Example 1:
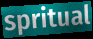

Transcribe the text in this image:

spritual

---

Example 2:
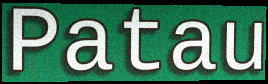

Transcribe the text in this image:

Patau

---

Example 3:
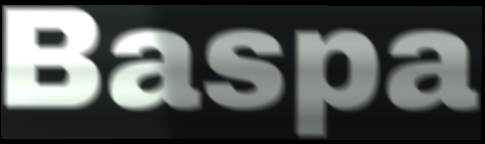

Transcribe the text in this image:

Baspa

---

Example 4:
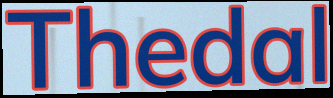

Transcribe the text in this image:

Thedal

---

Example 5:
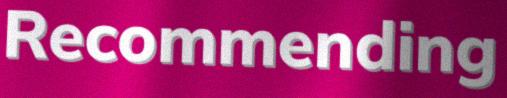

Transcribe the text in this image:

Recommending